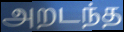
அறடந்த